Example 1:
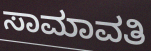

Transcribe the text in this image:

ಸಾಮಾವತಿ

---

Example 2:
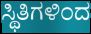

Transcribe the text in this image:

ಸ್ಥಿತಿಗಳಿಂದ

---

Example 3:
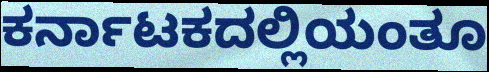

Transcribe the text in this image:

ಕರ್ನಾಟಕದಲ್ಲಿಯಂತೂ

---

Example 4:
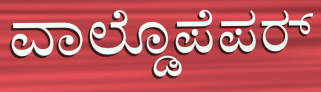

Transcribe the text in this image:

ವಾಲ್ಡೊಪೆಪರ್‍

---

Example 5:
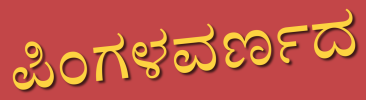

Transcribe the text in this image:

ಪಿಂಗಳವರ್ಣದ